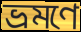
ভ্রমণে